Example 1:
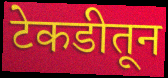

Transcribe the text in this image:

टेकडीतून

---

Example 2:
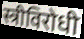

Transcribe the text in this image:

स्त्रीविरोधी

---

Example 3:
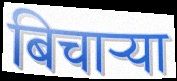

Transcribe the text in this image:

बिचाऱ्या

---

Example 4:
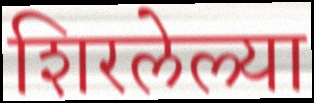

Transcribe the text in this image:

शिरलेल्या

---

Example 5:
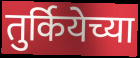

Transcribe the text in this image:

तुर्कियेच्या